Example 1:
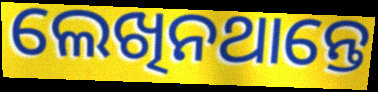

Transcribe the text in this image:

ଲେଖିନଥାନ୍ତେ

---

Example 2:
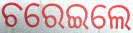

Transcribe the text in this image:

ଚରେଇଲେ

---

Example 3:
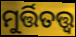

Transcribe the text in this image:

ମୁର୍ତ୍ତିତତ୍ତ୍ବ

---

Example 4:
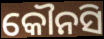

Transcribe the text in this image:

କୌନସି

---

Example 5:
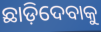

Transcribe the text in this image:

ଛାଡ଼ିଦେବାକୁ